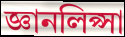
জ্ঞানলিপ্সা